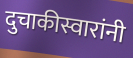
दुचाकीस्वारांनी